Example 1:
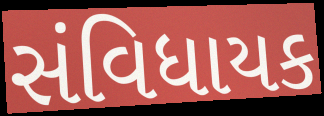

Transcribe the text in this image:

સંવિધાયક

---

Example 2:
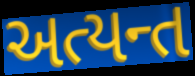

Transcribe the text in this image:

અત્યન્ત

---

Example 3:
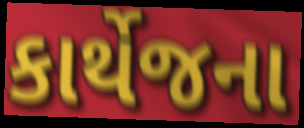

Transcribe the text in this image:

કાર્થેજના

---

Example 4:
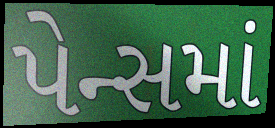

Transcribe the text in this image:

પેન્સમાં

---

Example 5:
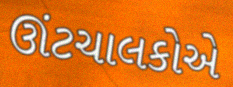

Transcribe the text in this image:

ઊંટચાલકોએ